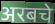
अरबचे